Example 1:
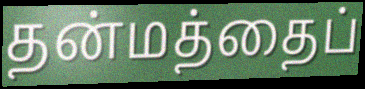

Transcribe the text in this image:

தன்மத்தைப்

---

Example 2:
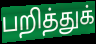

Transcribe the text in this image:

பறித்துக்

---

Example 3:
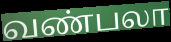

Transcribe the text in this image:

வண்பலா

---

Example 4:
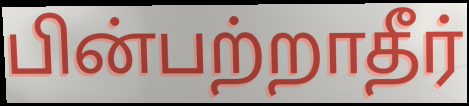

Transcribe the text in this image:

பின்பற்றாதீர்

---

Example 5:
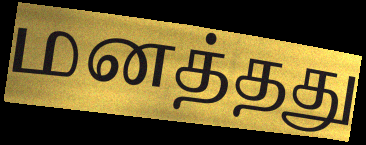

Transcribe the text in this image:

மனத்தது